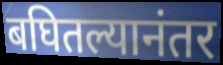
बघितल्यानंतर